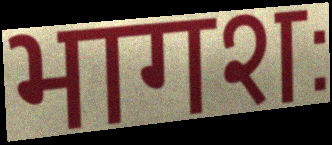
भागशः